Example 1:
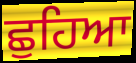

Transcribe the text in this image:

ਛੁਹਿਆ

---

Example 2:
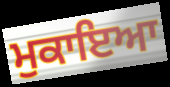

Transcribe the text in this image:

ਮੁਕਾਇਆ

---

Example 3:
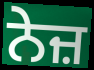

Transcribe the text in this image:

ਨੇਜ਼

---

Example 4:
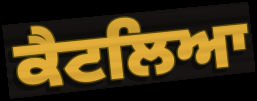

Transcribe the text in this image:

ਕੈਟਲਿਆ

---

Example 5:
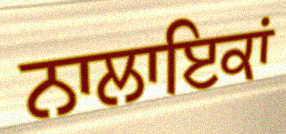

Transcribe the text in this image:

ਨਾਲਾਇਕਾਂ